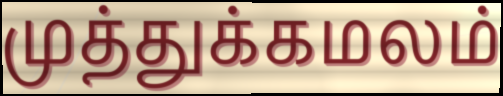
முத்துக்கமலம்